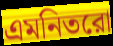
এমনিতরো